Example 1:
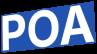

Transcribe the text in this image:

POA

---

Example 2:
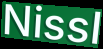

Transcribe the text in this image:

Nissl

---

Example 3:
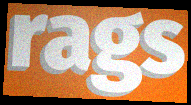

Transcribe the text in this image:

rags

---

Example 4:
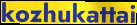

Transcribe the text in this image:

kozhukattai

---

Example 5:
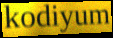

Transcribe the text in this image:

kodiyum